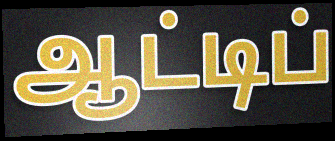
ஆட்டிப்